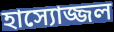
হাস্যোজ্জল